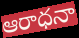
ఆరాధనా